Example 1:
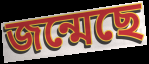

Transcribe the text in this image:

জন্মেছে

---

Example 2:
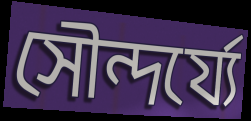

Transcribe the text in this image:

সৌন্দর্য্যে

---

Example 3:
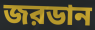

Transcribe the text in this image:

জরডান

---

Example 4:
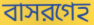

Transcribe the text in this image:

বাসরগেহ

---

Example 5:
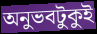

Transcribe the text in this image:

অনুভবটুকুই